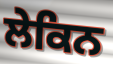
ਲੇਕਿਨ